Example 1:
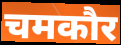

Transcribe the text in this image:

चमकौर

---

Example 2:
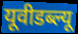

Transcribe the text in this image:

यूवीडब्ल्यू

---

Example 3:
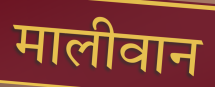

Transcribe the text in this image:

मालीवान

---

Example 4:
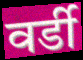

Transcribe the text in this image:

वर्डी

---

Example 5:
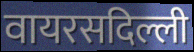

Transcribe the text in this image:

वायरसदिल्ली